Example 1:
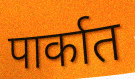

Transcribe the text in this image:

पार्कात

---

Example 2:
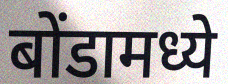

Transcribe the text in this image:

बोंडामध्ये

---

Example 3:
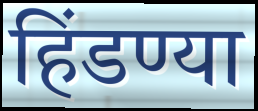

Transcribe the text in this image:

हिंडण्या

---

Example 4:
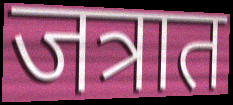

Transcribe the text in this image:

जत्रात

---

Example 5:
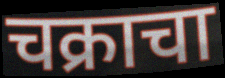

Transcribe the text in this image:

चक्राचा